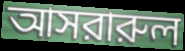
আসরারুল